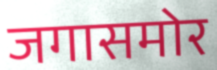
जगासमोर